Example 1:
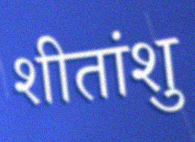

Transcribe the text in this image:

शीतांशु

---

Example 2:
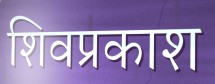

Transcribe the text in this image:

शिवप्रकाश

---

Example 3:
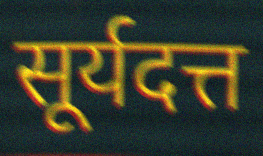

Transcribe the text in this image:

सूर्यदत्त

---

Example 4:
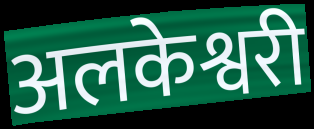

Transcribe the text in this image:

अलकेश्वरी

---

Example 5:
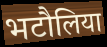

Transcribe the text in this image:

भटौलिया